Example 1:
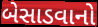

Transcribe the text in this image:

બેસાડવાનો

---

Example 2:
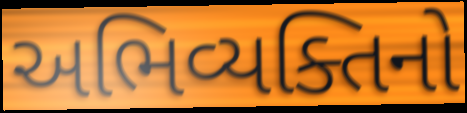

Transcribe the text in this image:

અભિવ્યક્તિનો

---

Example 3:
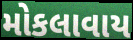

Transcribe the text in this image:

મોકલાવાય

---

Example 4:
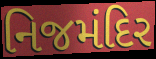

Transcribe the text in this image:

નિજમંદિર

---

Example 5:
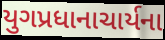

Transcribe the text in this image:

યુગપ્રધાનાચાર્યના